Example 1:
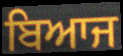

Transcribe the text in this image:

ਬਿਆਜ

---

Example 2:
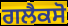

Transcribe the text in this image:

ਗਲੈਕਸੋ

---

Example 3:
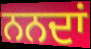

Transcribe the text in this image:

ਨਨਦਾਂ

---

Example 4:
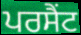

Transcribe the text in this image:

ਪਰਸੈਂਟ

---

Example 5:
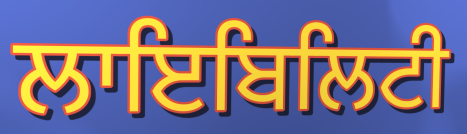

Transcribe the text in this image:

ਲਾਇਬਿਲਿਟੀ